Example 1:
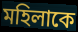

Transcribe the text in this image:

মহিলাকে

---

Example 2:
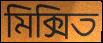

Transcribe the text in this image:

মিক্সিত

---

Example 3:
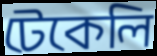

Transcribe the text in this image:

টেকেলি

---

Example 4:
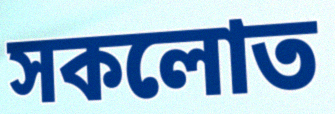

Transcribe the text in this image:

সকলোত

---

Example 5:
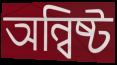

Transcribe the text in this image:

অন্বিষ্ট